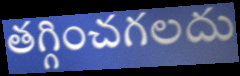
తగ్గించగలదు